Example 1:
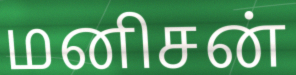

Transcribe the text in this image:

மனிசன்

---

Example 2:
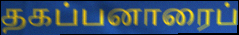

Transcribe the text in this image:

தகப்பனாரைப்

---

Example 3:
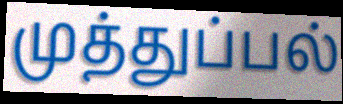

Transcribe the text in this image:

முத்துப்பல்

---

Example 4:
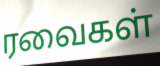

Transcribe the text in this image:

ரவைகள்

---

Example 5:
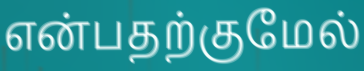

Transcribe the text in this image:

என்பதற்குமேல்